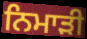
ਨਿਮਾੜੀ